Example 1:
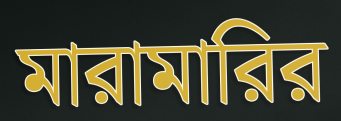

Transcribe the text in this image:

মারামারির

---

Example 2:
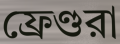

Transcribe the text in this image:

ফ্রেণ্ডরা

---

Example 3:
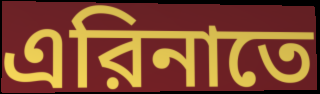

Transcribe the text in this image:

এরিনাতে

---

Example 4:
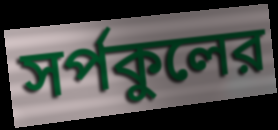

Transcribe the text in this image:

সর্পকুলের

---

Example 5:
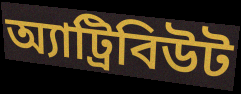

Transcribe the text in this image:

অ্যাট্রিবিউট